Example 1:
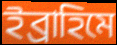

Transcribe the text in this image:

ইব্ৰাহিমে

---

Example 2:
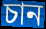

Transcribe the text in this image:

চান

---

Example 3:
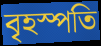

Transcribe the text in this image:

বৃহস্পতি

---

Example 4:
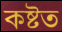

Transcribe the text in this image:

কষ্টত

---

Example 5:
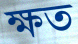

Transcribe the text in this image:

ক্ষত